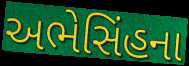
અભેસિંહના